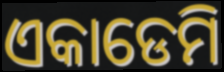
ଏକାଡେମି